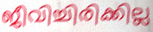
ജീവിച്ചിരിക്കില്ല